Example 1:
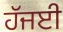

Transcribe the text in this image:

ਹੱਜਈ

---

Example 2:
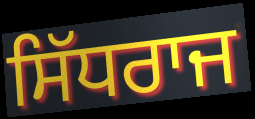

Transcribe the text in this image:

ਸਿੱਧਰਾਜ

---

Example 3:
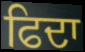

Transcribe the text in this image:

ਫਿਦਾ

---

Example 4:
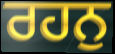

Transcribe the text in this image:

ਰਹਨੁ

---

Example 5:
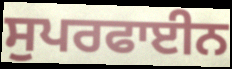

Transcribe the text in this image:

ਸੁਪਰਫਾਈਨ